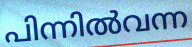
പിന്നിൽവന്ന